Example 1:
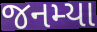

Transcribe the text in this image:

જનમ્યા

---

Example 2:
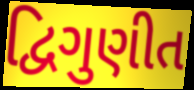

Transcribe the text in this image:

દ્વિગુણીત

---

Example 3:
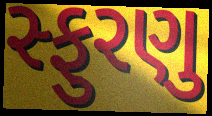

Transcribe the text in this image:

સ્ફુરણુ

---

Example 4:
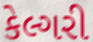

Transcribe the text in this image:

કેલ્ગરી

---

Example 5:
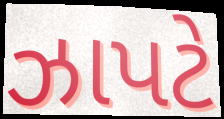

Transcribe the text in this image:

ઝાપટે